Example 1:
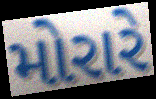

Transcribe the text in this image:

મોરારે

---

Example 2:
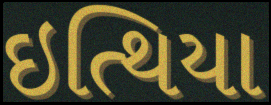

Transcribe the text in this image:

ઇત્થિયા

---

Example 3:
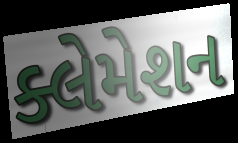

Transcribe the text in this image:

ક્લેમેશન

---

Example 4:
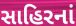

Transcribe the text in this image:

સાહિરનાં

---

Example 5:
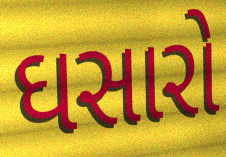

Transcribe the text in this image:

ઘસારો